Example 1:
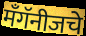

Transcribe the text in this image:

मँगॅनीजचे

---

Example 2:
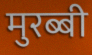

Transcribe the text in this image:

मुरब्बी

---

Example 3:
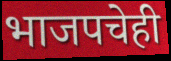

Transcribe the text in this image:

भाजपचेही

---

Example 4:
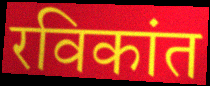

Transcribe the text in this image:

रविकांत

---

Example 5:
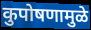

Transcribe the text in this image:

कुपोषणामुळे